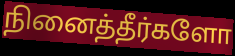
நினைத்தீர்களோ